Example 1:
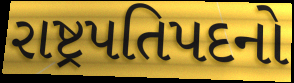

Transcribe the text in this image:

રાષ્ટ્રપતિપદનો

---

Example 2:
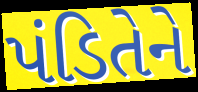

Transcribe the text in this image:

પંડિતેને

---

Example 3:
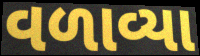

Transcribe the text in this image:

વળાવ્યા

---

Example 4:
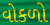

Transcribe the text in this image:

વોકળો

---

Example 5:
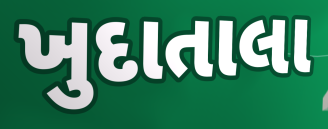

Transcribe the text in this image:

ખુદાતાલા